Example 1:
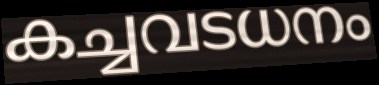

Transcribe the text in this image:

കച്ചവടധനം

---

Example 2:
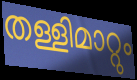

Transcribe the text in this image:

തള്ളിമാറ്റും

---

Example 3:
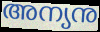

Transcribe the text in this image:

അന്യനു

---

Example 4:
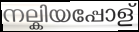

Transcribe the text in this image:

നല്കിയപ്പോള്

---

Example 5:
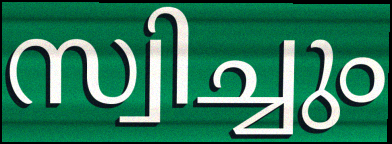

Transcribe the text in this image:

സ്വിച്ചും